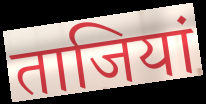
ताजियां